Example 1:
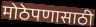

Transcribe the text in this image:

मोठेपणासाठी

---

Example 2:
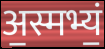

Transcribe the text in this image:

अ॒स्मभ्यं॒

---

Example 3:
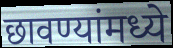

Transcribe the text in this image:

छावण्यांमध्ये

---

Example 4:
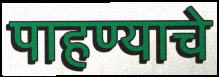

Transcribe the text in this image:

पाहण्याचे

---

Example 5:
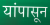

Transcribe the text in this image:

यांपासून